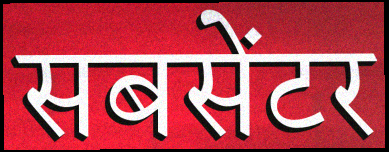
सबसेंटर